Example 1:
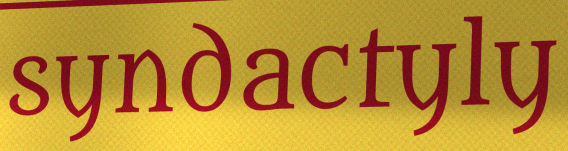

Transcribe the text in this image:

syndactyly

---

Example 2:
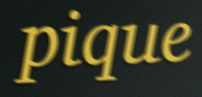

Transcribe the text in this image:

pique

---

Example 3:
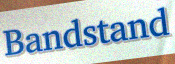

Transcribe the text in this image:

Bandstand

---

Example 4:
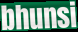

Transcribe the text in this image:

bhunsi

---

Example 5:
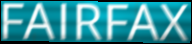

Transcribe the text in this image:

FAIRFAX